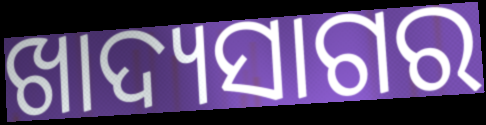
ଖାଦ୍ୟସାଗର